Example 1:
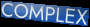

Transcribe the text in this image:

COMPLEX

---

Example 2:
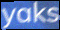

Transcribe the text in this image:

yaks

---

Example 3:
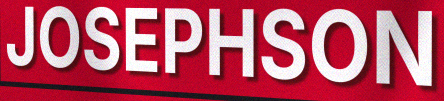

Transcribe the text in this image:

JOSEPHSON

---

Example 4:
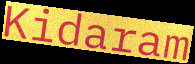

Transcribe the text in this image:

Kidaram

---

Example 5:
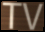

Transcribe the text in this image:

TV